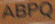
ABPQ